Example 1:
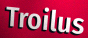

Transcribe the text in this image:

Troilus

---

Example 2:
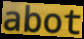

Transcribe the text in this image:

abot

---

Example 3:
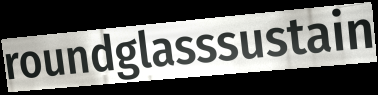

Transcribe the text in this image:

roundglasssustain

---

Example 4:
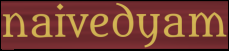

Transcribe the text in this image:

naivedyam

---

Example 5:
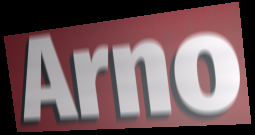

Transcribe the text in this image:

Arno